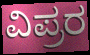
ವಿಪ್ರರ